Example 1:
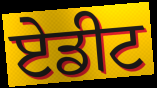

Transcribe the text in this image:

ਏਡੀਟ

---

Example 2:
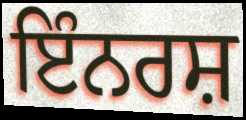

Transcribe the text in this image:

ਇੰਨਰਸ਼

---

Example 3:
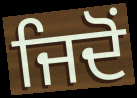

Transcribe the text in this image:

ਜਿਦੋਂ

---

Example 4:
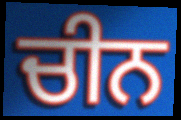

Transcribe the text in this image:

ਚੀਨ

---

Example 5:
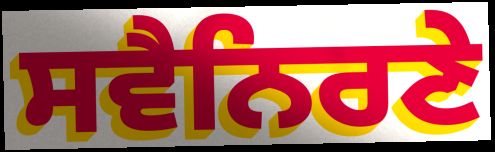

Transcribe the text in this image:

ਸਵੈਨਿਰਣੇ